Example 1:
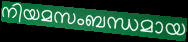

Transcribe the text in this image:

നിയമസംബന്ധമായ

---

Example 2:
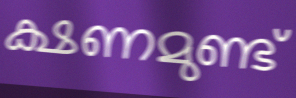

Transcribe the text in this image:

ക്ഷണമുണ്ട്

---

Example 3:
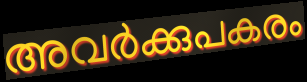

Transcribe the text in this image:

അവർക്കുപകരം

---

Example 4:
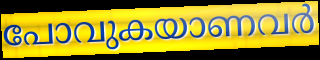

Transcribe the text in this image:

പോവുകയാണവർ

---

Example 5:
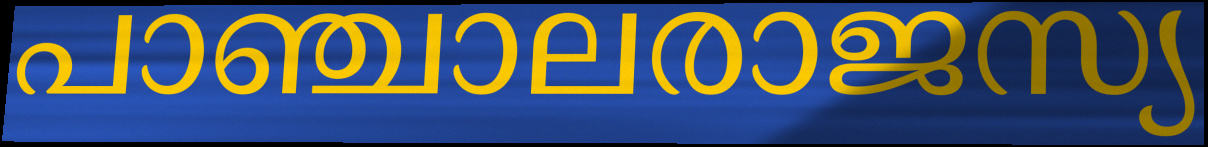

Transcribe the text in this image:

പാഞ്ചാലരാജസ്യ